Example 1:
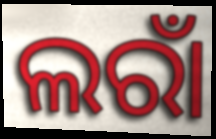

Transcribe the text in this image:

ଲରାଁ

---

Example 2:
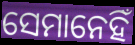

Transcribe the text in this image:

ସେମାନେହିଁ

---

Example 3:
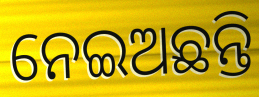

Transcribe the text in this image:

ନେଇଅଛନ୍ତି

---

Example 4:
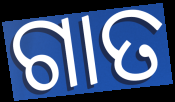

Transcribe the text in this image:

ଗାତ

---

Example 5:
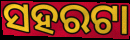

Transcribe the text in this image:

ସହରଟା